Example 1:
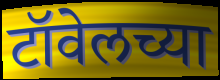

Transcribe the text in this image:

टॉवेलच्या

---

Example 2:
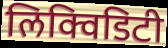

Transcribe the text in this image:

लिक्विडिटी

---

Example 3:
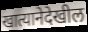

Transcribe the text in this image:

खात्यानेदेखील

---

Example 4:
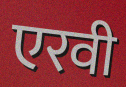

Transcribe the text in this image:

एरवी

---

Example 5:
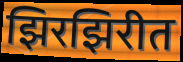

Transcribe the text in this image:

झिरझिरीत